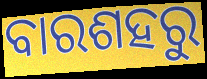
ବାରଶହରୁ